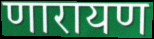
णारायण